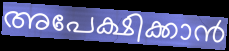
അപേക്ഷിക്കാൻ